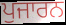
ਪੁਜਾਰਨ